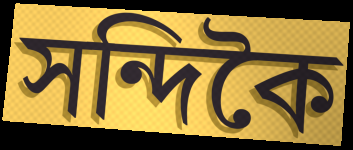
সন্দিকৈ